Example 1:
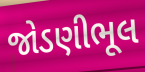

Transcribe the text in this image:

જોડણીભૂલ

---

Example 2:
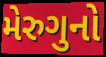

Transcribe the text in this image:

મેરુગુનો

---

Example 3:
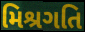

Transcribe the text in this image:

મિશ્રગતિ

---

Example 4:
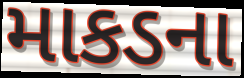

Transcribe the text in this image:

માકડના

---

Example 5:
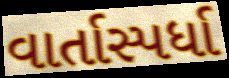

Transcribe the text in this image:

વાર્તાસ્પર્ધા